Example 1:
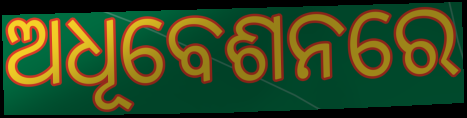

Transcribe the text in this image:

ଅଧୂବେଶନରେ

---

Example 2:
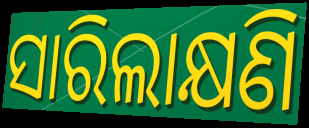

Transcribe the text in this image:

ସାରିଲାକ୍ଷଣି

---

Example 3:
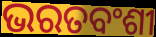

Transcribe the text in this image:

ଭରତବଂଶୀ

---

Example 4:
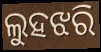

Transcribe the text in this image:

ଲୁହଝରି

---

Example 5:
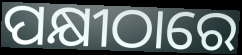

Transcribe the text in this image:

ପକ୍ଷୀଠାରେ